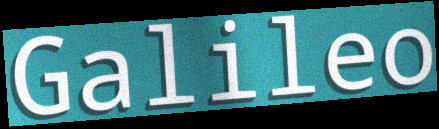
Galileo